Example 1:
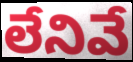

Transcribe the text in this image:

లేనివే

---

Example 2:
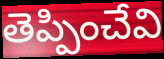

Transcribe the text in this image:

తెప్పించేవి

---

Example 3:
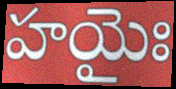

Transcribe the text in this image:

హయైః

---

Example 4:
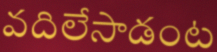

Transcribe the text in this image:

వదిలేసాడంట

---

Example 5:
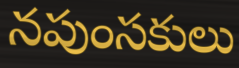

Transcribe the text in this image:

నపుంసకులు